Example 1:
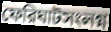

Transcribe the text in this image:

ফেরিঘাটসংলগ্ন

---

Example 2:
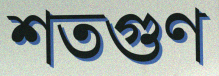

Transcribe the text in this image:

শতগুণ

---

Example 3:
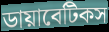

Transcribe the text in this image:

ডায়াবেটিকস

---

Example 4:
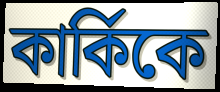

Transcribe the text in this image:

কার্কিকে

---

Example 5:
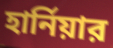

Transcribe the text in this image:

হার্নিয়ার